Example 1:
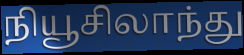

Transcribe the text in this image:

நியூசிலாந்து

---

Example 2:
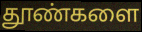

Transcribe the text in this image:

தூண்களை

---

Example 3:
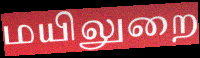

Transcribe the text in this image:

மயிலுறை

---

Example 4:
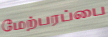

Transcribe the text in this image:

மேற்பரப்பை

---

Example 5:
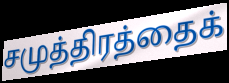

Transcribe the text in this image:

சமுத்திரத்தைக்